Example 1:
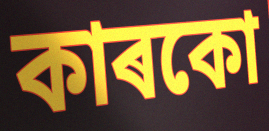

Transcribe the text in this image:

কাৰকো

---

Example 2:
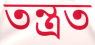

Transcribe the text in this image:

তন্ত্ৰত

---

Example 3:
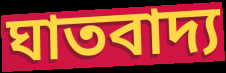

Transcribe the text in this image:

ঘাতবাদ্য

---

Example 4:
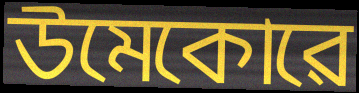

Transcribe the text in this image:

উমেকোৱে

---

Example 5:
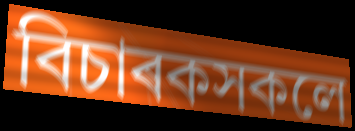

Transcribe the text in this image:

বিচাৰকসকলে